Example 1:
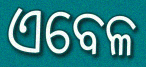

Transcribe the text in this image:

ଏବେଳ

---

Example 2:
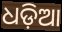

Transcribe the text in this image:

ଧଡ଼ିଆ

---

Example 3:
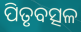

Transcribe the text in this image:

ପିତୃବତ୍ସଳ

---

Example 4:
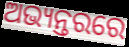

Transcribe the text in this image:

ଅଭ୍ୟନ୍ତରରେ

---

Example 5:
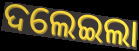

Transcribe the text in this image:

ଦଲେଇଲା